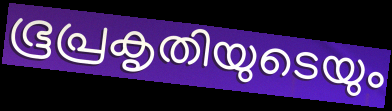
ഭൂപ്രകൃതിയുടെയും